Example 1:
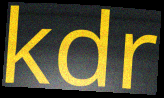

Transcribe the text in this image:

kdr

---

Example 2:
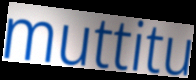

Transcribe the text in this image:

muttitu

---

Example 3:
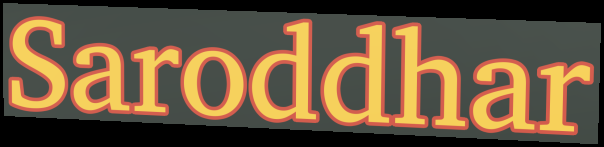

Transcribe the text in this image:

Saroddhar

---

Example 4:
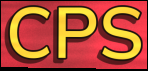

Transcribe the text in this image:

CPS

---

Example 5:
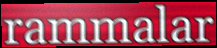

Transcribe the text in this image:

rammalar